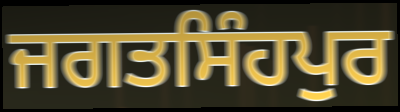
ਜਗਤਸਿੰਹਪੁਰ